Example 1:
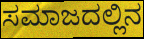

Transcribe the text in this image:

ಸಮಾಜದಲ್ಲಿನ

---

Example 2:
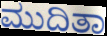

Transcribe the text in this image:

ಮುದಿತಾ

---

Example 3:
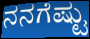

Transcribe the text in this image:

ನನಗೆಷ್ಟು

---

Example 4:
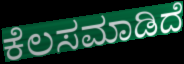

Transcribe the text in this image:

ಕೆಲಸಮಾಡಿದೆ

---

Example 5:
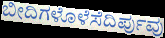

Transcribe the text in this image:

ಬೀದಿಗಳೊಳೆಸೆದಿರ್ಪುವು